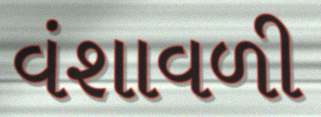
વંશાવળી